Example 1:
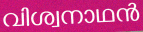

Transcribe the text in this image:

വിശ്വനാഥൻ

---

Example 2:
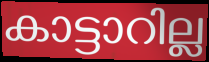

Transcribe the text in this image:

കാട്ടാറില്ല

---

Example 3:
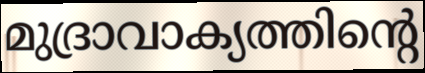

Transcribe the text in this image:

മുദ്രാവാക്യത്തിന്റെ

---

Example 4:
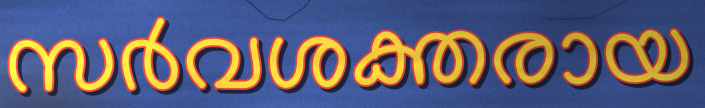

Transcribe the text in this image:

സർവശക്തരായ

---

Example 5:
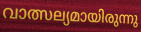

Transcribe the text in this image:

വാത്സല്യമായിരുന്നു